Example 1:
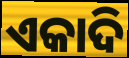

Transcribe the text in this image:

ଏକାଦି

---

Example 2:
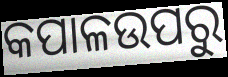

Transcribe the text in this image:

କପାଳଉପରୁ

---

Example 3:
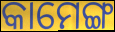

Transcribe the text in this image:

କାମେଙ୍ଗ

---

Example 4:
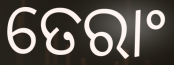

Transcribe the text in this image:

ତେରାଂ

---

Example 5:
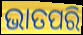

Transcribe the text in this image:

ଭାତପରି